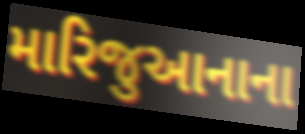
મારિજુઆનાના